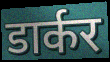
डार्कर